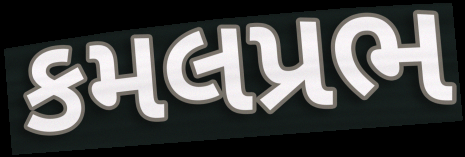
કમલપ્રભ